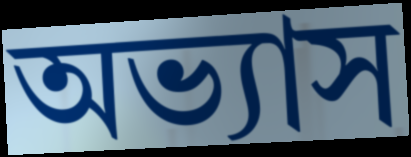
অভ্যাস